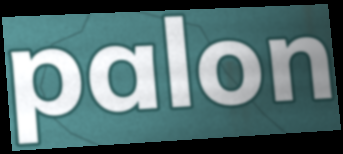
palon